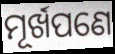
ମୂର୍ଖପଣେ